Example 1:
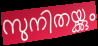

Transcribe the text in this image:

സുനിതയ്ക്കും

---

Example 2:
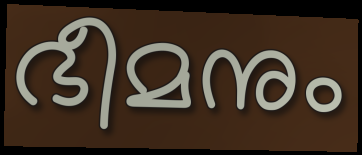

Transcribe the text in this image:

ഭീമനും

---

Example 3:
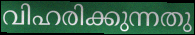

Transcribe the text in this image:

വിഹരിക്കുന്നതു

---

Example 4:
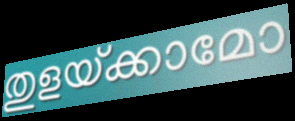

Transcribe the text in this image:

തുളയ്‌ക്കാമോ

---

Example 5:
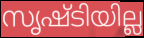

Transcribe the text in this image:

സൃഷ്ടിയില്ല